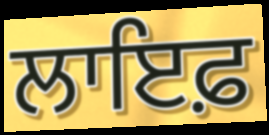
ਲਾਇਫ਼